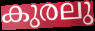
കുരലു